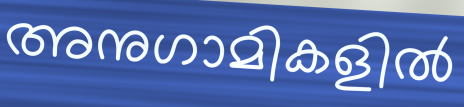
അനുഗാമികളിൽ